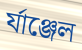
র্যাঞ্জেল